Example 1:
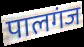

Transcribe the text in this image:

पालगंज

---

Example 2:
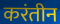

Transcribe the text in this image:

करंतीन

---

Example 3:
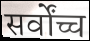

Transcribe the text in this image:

सर्वोंच्च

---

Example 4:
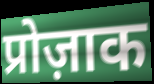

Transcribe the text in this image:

प्रोज़ाक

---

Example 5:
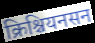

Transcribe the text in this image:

क्रिश्चियनसन